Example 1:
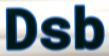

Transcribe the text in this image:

Dsb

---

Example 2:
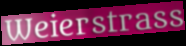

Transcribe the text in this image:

Weierstrass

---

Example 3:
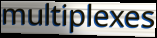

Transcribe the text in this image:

multiplexes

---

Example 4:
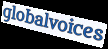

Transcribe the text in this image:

globalvoices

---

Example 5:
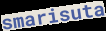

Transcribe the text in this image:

smarisuta